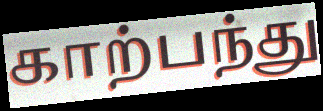
காற்பந்து